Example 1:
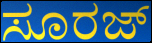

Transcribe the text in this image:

ಸೂರಜ್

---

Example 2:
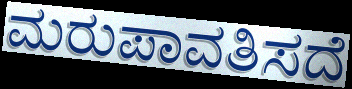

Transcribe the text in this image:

ಮರುಪಾವತಿಸದೆ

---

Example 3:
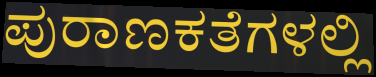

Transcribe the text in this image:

ಪುರಾಣಕತೆಗಳಲ್ಲಿ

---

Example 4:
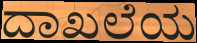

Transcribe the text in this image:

ದಾಖಲೆಯ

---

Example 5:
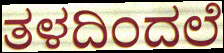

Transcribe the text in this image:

ತಳದಿಂದಲೆ